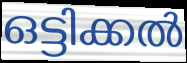
ഒട്ടിക്കൽ